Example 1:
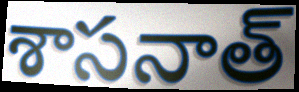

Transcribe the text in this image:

శాసనాత్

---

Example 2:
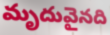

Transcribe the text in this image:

మృదువైనది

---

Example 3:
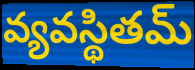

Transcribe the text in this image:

వ్యవస్థితమ్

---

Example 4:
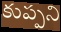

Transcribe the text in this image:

కుప్పని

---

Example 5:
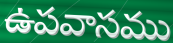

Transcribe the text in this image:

ఉపవాసము